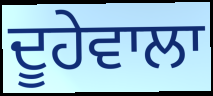
ਦੂਹੇਵਾਲਾ